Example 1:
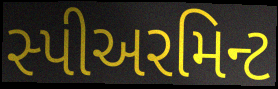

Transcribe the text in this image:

સ્પીઅરમિન્ટ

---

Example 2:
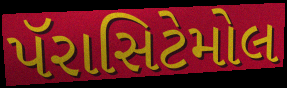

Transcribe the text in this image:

પૅરાસિટેમોલ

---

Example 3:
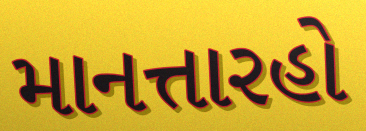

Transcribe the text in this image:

માનત્તારહો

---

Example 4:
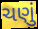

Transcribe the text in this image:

ચણું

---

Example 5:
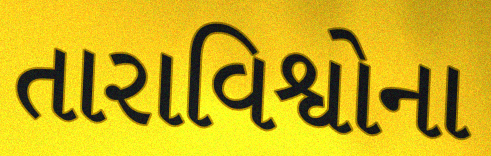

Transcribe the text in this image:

તારાવિશ્વોના